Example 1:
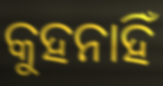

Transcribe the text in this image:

କୁହନାହିଁ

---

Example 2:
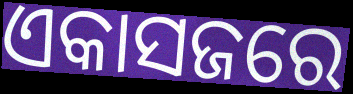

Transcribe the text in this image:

ଏକାସଜରେ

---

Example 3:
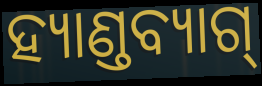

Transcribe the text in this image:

ହ୍ୟାଣ୍ଡବ୍ୟାଗ୍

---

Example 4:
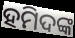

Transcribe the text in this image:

ହମିଦଙ୍କ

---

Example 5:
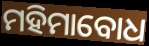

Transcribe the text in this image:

ମହିମାବୋଧ